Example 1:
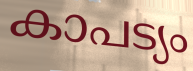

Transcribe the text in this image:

കാപട്യം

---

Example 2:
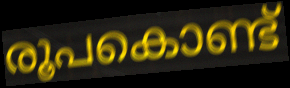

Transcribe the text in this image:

രൂപകൊണ്ട്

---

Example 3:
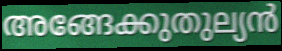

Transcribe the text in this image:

അങ്ങേക്കുതുല്യൻ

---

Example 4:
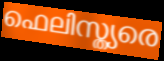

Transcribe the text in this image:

ഫെലിസ്ത്യരെ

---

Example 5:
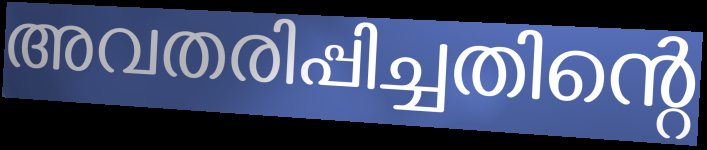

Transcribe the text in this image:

അവതരിപ്പിച്ചതിന്റെ